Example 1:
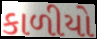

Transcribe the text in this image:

કાળીયો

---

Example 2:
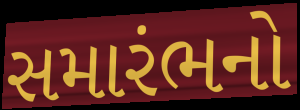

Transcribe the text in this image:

સમારંભનો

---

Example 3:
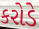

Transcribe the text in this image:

કરોડે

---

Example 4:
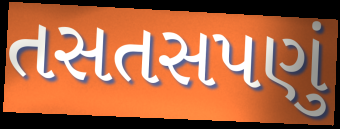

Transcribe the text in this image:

તસતસપણું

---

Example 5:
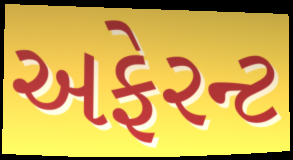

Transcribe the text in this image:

અફેરન્ટ